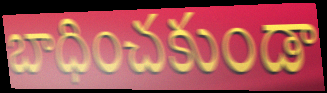
బాధించకుండా